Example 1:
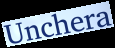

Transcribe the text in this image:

Unchera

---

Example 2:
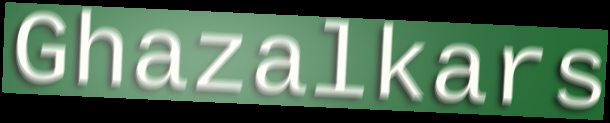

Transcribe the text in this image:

Ghazalkars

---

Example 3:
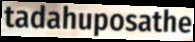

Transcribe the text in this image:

tadahuposathe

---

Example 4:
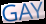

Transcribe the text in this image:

GAY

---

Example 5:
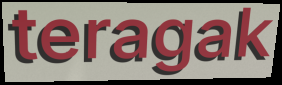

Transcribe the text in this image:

teragak